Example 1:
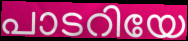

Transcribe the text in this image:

പാടറിയേ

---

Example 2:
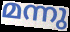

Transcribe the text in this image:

മന്നു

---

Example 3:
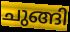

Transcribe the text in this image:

ചുങ്ങി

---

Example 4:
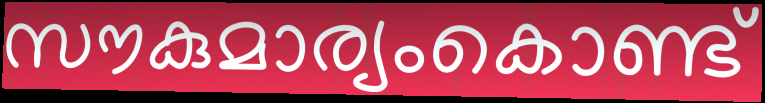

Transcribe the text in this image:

സൗകുമാര്യംകൊണ്ട്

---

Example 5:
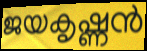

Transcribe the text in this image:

ജയകൃഷ്ണൻ